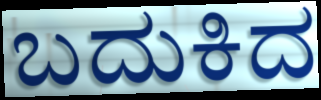
ಬದುಕಿದ